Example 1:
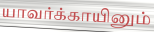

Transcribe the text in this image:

யாவர்க்காயினும்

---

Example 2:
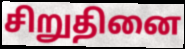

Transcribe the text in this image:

சிறுதினை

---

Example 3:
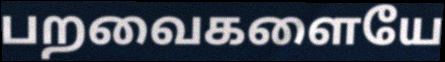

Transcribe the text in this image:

பறவைகளையே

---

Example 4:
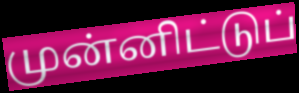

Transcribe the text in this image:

முன்னிட்டுப்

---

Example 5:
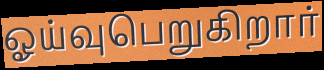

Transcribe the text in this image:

ஓய்வுபெறுகிறார்